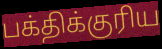
பக்திக்குரிய